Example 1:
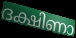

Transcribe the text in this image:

ദക്ഷിണാ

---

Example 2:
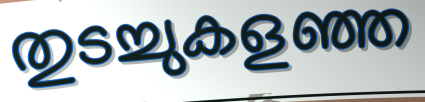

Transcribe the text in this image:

തുടച്ചുകളഞ്ഞ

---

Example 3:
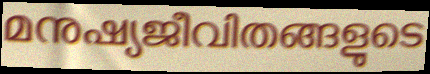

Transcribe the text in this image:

മനുഷ്യജീവിതങ്ങളുടെ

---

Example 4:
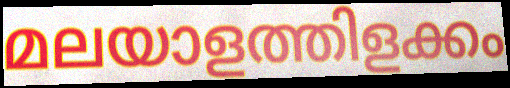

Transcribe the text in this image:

മലയാളത്തിളക്കം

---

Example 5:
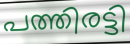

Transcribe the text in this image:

പത്തിരട്ടി